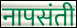
नापसंती